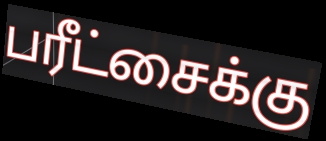
பரீட்சைக்கு